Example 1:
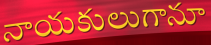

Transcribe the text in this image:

నాయకులుగానూ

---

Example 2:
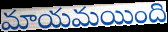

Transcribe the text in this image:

మాయమయింది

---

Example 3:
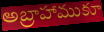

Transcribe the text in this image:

అబ్రాహాముకూ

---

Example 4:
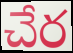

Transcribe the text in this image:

చేర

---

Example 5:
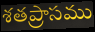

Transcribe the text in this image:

శతప్రాసము